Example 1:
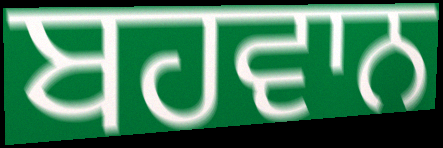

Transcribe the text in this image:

ਬਹਵਾਨ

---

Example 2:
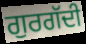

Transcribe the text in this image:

ਗੁਰਗੱਦੀ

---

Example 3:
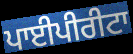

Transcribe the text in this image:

ਪਾਈਪੀਰੀਟਾ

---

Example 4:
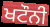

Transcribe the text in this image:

ਖਟੌਨੀ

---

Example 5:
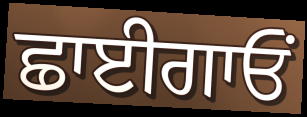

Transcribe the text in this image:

ਛਾਈਗਾਓਂ